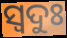
ସ୍ବଦୁଃ